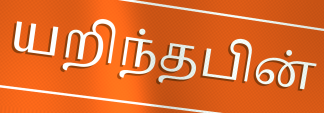
யறிந்தபின்